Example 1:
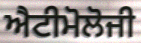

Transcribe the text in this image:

ਐਟੀਮੋਲੋਜੀ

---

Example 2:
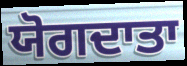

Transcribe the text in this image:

ਯੋਗਦਾਤਾ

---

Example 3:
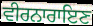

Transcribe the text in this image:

ਵੀਰਨਾਰਾਇਣ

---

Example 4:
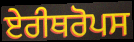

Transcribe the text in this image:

ਏਰੀਥਰੋਪਸ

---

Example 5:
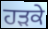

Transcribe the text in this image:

ਹੜਕੇ